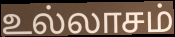
உல்லாசம்